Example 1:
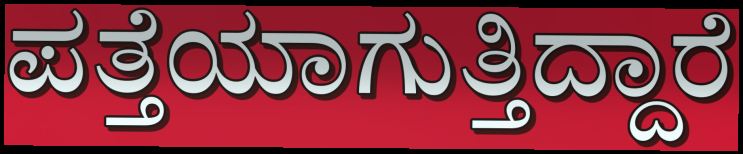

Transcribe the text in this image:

ಪತ್ತೆಯಾಗುತ್ತಿದ್ದಾರೆ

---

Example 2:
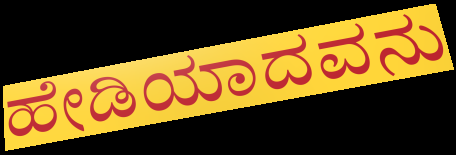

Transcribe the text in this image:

ಹೇಡಿಯಾದವನು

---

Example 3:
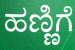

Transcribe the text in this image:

ಹಣ್ಣಿಗೆ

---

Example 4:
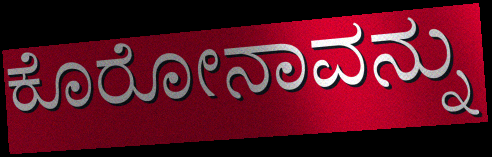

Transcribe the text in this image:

ಕೊರೋನಾವನ್ನು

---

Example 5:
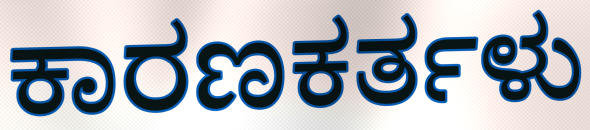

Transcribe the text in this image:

ಕಾರಣಕರ್ತಳು